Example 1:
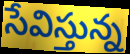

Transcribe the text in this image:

సేవిస్తున్న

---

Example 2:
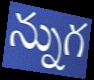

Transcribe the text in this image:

న్నుగ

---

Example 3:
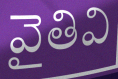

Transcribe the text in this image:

వైతివి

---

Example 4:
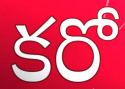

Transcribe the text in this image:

కరో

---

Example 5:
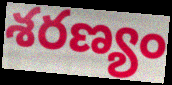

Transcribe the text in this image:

శరణ్యం